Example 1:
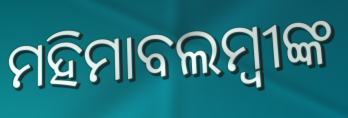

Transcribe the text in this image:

ମହିମାବଲମ୍ବୀଙ୍କ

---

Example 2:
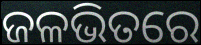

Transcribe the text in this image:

ଜଳଭିତରେ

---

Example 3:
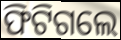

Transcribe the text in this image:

ଫିଟିଗଲେ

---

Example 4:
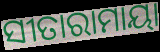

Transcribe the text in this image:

ସୀତାରାମାୟା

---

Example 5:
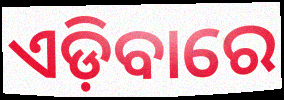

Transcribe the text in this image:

ଏଡ଼ିବାରେ